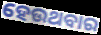
ହେଉଥବାର